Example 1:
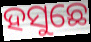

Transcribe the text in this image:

ହସୁଛେ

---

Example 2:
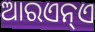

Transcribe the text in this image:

ଆରଏନ୍ଏ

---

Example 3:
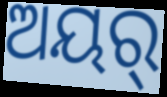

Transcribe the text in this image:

ଅୟର୍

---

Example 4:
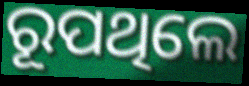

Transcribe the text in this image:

ରୂପଥିଲେ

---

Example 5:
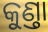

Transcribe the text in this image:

କୁଣ୍ତା